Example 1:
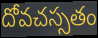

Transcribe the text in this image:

దోవచస్సతం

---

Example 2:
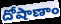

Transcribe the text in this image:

దోషాణాం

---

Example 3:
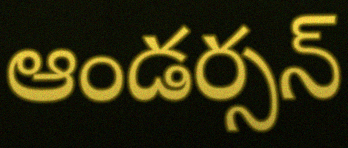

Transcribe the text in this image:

ఆండర్సన్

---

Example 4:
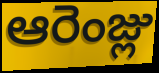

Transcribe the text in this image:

ఆరెంజ్లు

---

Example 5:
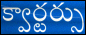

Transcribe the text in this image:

క్వార్టర్సు